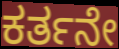
ಕರ್ತನೇ